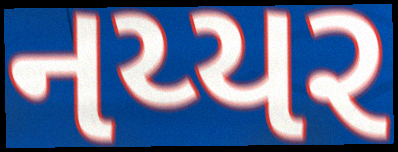
નય્યર